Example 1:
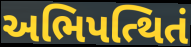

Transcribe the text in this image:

અભિપત્થિતં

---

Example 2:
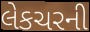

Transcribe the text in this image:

લેકચરની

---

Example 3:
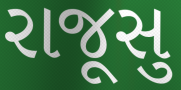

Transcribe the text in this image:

રાજૂસુ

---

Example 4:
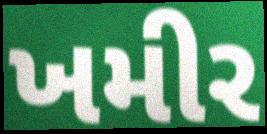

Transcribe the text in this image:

ખમીર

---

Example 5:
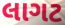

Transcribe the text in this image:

લાગટ